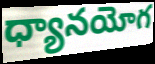
ధ్యానయోగ